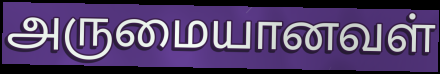
அருமையானவள்